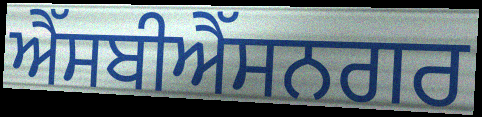
ਐੱਸਬੀਐੱਸਨਗਰ